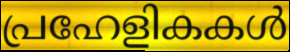
പ്രഹേളികകൾ